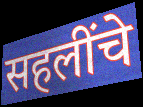
सहलींचे